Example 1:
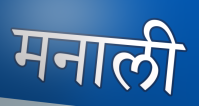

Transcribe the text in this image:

मनाली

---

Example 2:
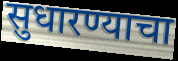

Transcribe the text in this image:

सुधारण्याचा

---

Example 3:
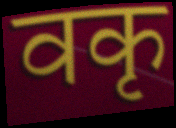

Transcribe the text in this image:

वकृ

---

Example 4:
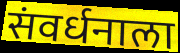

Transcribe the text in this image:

संवर्धनाला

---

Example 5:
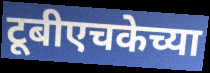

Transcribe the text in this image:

टूबीएचकेच्या